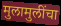
मुलामुलींचा